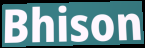
Bhison